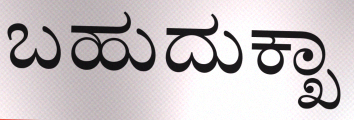
ಬಹುದುಕ್ಖಾ